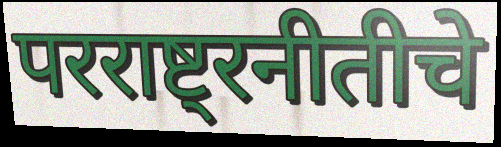
परराष्ट्रनीतीचे